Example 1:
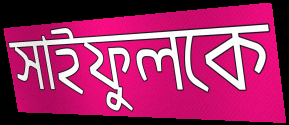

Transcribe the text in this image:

সাইফুলকে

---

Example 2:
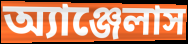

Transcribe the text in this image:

অ্যাঞ্জেলাস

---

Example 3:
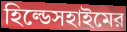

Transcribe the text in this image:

হিল্ডেসহাইমের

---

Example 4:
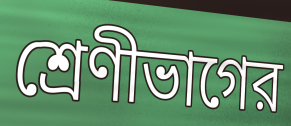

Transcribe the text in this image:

শ্রেণীভাগের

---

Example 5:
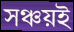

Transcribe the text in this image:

সঞ্চয়ই